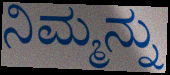
ನಿಮ್ಮನ್ನು